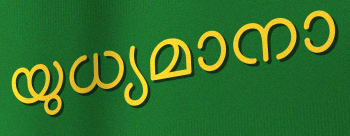
യുധ്യമാനാ